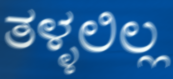
ತಳ್ಳಲಿಲ್ಲ